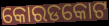
କୋରଡକୋଟ